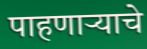
पाहणाऱ्याचे